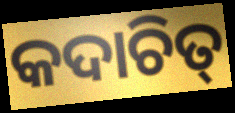
କଦାଚିତ୍